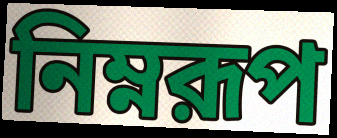
নিম্নরূপ